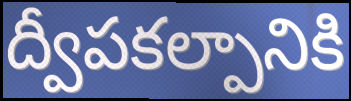
ద్వీపకల్పానికి